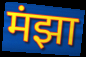
मंझा